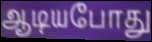
ஆடியபோது